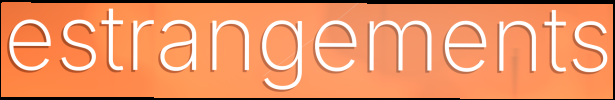
estrangements